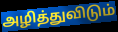
அழித்துவிடும்